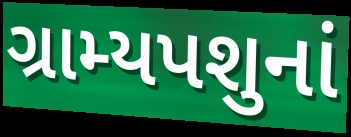
ગ્રામ્યપશુનાં